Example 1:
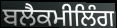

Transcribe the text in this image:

ਬਲੈਕਮੀਲਿੰਗ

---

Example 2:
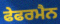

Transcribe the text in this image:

ਫੇਫਰਮੈਨ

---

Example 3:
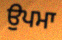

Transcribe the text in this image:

ਉਪਮਾ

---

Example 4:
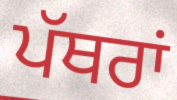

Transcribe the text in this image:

ਪੱਥਰਾਂ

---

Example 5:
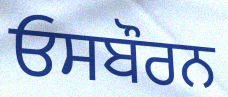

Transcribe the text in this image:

ਓਸਬੌਰਨ